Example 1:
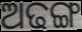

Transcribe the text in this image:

ଅଢଙ୍ଗ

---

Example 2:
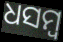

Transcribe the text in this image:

ଧସମ୍ବ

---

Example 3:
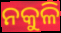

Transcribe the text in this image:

ନକୁଳି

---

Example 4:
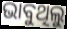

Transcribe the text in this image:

ଭାବୁଥିଲୁ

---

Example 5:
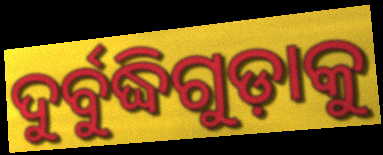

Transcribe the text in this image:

ଦୁର୍ବୁଦ୍ଧିଗୁଡ଼ାକୁ